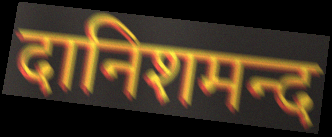
दानिशमन्द